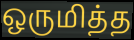
ஒருமித்த